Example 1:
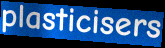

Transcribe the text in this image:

plasticisers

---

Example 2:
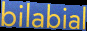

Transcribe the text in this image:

bilabial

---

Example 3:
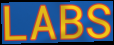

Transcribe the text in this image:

LABS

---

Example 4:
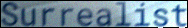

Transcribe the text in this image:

Surrealist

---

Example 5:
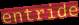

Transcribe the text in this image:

entride